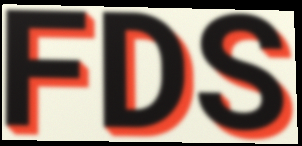
FDS